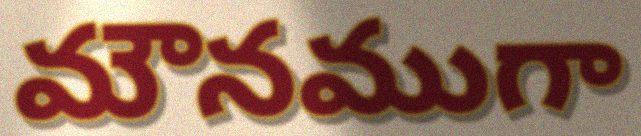
మౌనముగా